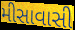
મીસાવાસી